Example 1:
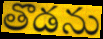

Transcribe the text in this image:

తొడను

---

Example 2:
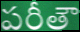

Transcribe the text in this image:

పరీతౌ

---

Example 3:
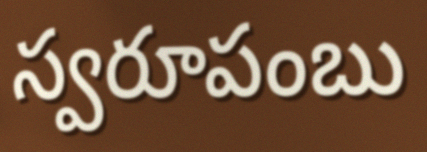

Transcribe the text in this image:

స్వరూపంబు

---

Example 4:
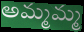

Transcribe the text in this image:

అమ్మమ్మ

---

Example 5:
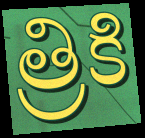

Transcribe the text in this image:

త్రికి